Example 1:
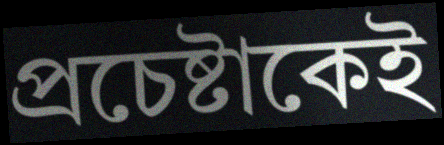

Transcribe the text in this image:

প্রচেষ্টাকেই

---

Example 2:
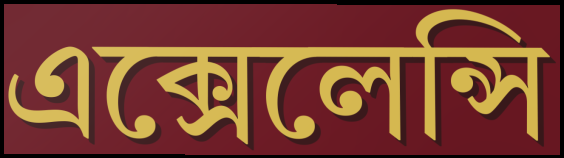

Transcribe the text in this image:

এক্সেলেন্সি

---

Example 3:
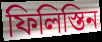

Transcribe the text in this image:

ফিলিস্তিন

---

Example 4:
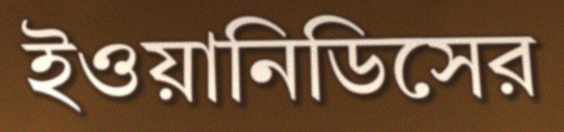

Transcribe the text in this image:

ইওয়ানিডিসের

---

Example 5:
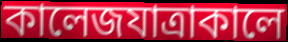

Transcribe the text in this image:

কালেজযাত্রাকালে